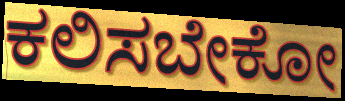
ಕಲಿಸಬೇಕೋ